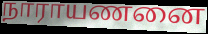
நாராயணனை